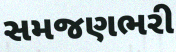
સમજણભરી